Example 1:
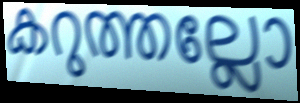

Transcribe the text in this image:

കറുത്തല്ലോ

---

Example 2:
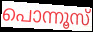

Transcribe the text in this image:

പൊന്നൂസ്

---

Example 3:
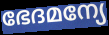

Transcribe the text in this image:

ഭേദമന്യേ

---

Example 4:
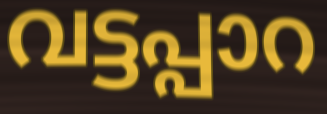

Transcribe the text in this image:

വട്ടപ്പാറ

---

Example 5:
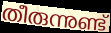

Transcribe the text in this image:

തീരുന്നുണ്ട്